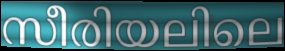
സീരിയലിലെ